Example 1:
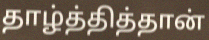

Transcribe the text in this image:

தாழ்த்தித்தான்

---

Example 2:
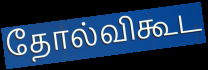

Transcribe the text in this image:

தோல்விகூட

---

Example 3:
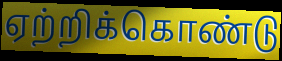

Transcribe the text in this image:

ஏற்றிக்கொண்டு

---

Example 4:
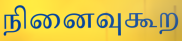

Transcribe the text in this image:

நினைவுகூற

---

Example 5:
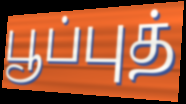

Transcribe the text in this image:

பூப்புத்